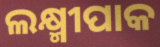
ଲକ୍ଷ୍ମୀପାକ